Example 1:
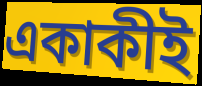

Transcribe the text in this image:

একাকীই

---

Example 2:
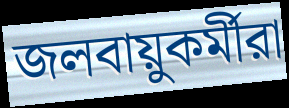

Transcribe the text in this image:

জলবায়ুকর্মীরা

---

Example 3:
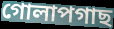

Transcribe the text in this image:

গোলাপগাছ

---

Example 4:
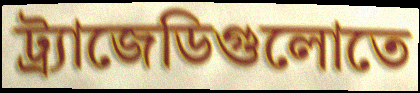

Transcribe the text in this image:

ট্র্যাজেডিগুলোতে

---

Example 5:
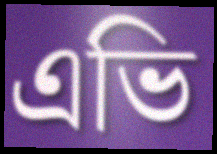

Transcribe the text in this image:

এভি